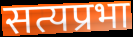
सत्यप्रभा